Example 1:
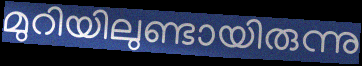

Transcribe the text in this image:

മുറിയിലുണ്ടായിരുന്നു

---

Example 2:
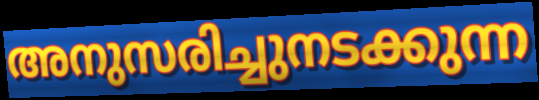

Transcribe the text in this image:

അനുസരിച്ചുനടക്കുന്ന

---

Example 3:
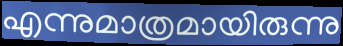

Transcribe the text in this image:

എന്നുമാത്രമായിരുന്നു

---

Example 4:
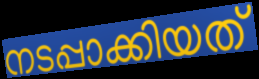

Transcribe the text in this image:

നടപ്പാക്കിയത്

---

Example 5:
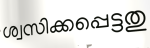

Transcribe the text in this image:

ശ്വസിക്കപ്പെട്ടതു